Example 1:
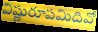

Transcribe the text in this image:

విష్ణురూపమిదివో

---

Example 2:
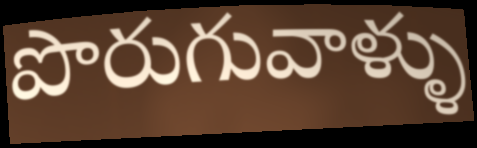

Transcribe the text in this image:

పొరుగువాళ్ళు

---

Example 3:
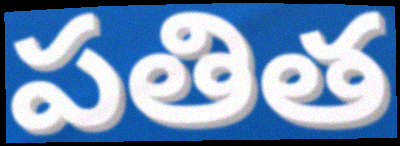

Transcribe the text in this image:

పతిత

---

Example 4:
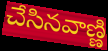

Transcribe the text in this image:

చేసినవాణ్ణి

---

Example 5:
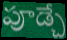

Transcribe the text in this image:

పూడ్చే